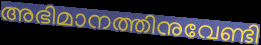
അഭിമാനത്തിനുവേണ്ടി